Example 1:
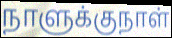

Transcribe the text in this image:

நாளுக்குநாள்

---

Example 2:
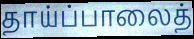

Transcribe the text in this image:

தாய்ப்பாலைத்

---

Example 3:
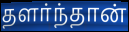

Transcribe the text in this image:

தளர்ந்தான்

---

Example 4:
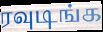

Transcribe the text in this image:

ரவுடிங்க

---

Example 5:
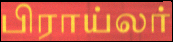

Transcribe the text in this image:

பிராய்லர்